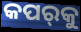
କପର୍‌କୁ